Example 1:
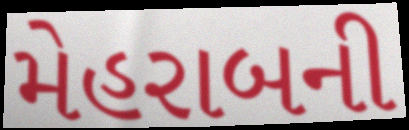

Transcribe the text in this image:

મેહરાબની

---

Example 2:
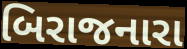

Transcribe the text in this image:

બિરાજનારા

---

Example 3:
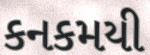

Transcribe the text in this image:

કનકમયી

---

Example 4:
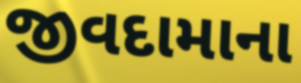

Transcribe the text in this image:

જીવદામાના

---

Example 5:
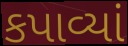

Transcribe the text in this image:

કપાવ્યાં